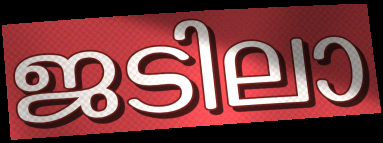
ജടിലാ